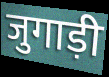
जुगाड़ी